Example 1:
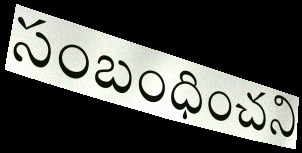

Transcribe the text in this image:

సంబంధించని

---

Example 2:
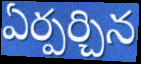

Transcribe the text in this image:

ఏర్పర్చిన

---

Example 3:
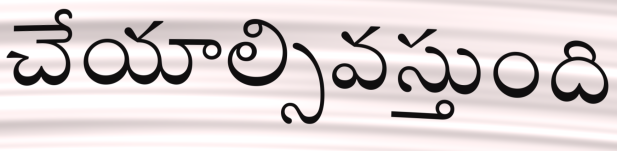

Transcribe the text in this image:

చేయాల్సివస్తుంది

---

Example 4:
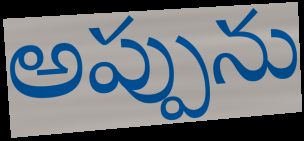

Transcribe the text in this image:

అప్పును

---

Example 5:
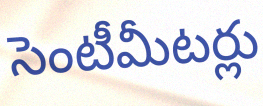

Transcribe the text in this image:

సెంటీమీటర్లు